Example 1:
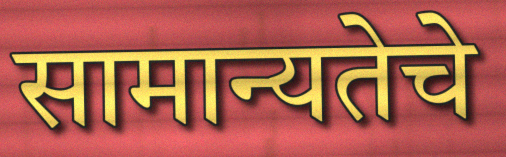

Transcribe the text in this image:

सामान्यतेचे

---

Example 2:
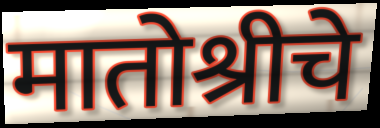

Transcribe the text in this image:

मातोश्रीचे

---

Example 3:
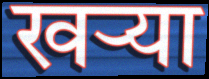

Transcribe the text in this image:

खऱ्या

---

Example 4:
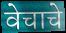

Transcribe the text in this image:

वेचाचे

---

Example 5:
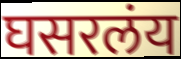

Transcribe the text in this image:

घसरलंय